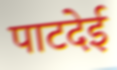
पाटदेई